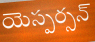
యెస్పర్సన్